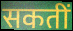
सकतीं